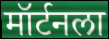
मॉर्टनला